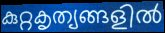
കുറ്റകൃത്യങ്ങളിൽ